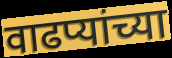
वाढप्यांच्या